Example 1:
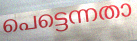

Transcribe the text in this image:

പെട്ടെന്നതാ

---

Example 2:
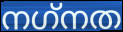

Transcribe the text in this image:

നഗ്‌നത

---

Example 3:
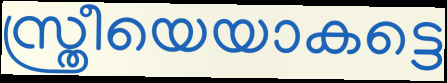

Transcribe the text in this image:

സ്ത്രീയെയാകട്ടെ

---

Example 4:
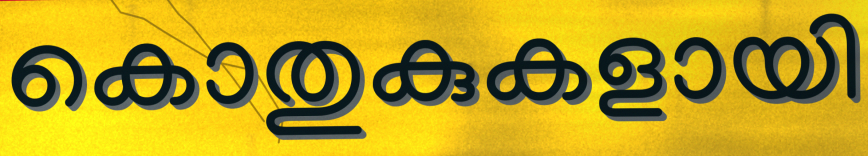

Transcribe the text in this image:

കൊതുകുകളായി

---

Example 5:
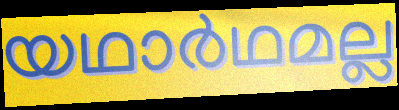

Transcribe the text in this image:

യഥാർഥമല്ല